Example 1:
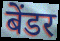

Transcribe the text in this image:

बेंडर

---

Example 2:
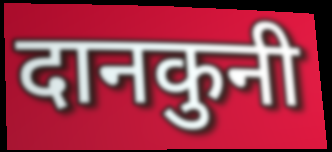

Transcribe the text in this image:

दानकुनी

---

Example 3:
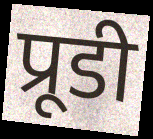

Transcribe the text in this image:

प्रूडी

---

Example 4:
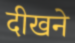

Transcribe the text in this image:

दीखने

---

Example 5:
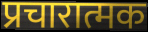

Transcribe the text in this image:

प्रचारात्मक